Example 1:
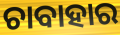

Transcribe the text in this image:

ଚାବାହାର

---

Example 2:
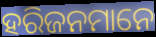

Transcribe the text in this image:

ହରିଜନମାନେ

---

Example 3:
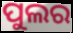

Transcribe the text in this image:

ପୁଲର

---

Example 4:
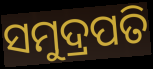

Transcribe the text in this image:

ସମୁଦ୍ରପତି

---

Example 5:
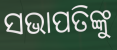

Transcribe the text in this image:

ସଭାପତିଙ୍କୁ